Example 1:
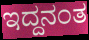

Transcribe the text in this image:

ಇದ್ದನಂತ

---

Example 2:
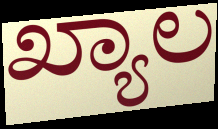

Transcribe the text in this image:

ಖ್ಯಾಲ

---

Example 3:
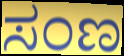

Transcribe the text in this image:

ಸಂಣ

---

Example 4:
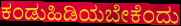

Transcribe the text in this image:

ಕಂಡುಹಿಡಿಯಬೇಕೆಂದು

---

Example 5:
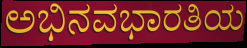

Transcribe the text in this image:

ಅಭಿನವಭಾರತಿಯ